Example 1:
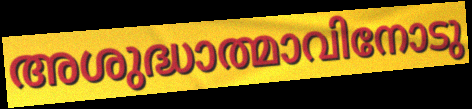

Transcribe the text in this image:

അശുദ്ധാത്മാവിനോടു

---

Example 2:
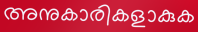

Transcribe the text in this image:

അനുകാരികളാകുക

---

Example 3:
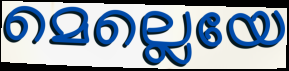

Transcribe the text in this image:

മെല്ലെയേ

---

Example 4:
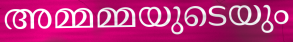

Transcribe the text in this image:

അമ്മമ്മയുടെയും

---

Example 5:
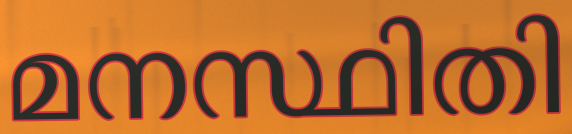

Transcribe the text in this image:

മനസ്ഥിതി